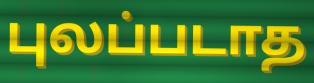
புலப்படாத